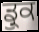
ਡ੍ਰੁਕ